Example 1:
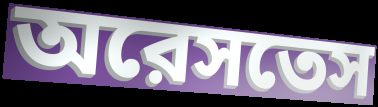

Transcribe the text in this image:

অরেসতেস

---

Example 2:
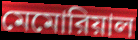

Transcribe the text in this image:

মেমোরিয়াল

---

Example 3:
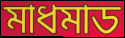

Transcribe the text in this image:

মাধমাড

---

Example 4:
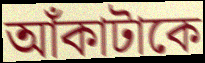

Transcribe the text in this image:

আঁকাটাকে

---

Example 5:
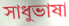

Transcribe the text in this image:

সাধুভাষা